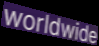
worldwide